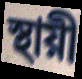
স্থায়ী